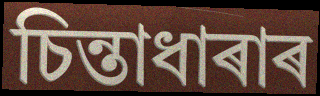
চিন্তাধাৰাৰ